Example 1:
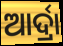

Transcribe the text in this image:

ଆର୍ଦ୍ରା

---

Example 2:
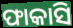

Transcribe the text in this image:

ଫାକାସି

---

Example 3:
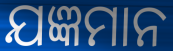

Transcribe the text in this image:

ଯଜ୍ଞମାନ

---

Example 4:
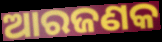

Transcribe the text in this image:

ଆରଜଣକ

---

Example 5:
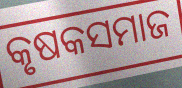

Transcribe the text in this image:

କୃଷକସମାଜ